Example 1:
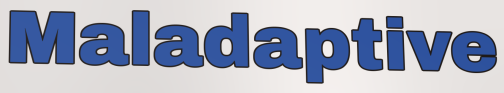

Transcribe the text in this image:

Maladaptive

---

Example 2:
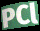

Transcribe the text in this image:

PCl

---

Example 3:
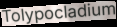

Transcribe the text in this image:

Tolypocladium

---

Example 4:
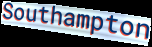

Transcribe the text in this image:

Southampton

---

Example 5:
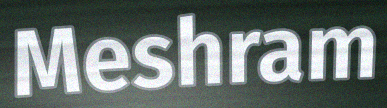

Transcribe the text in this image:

Meshram